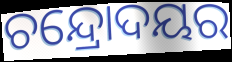
ଚନ୍ଦ୍ରୋଦୟର